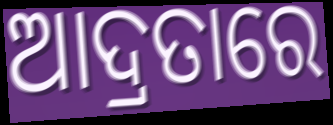
ଆଦ୍ରତାରେ